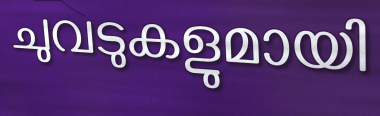
ചുവടുകളുമായി